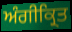
ਅੰਗੀਕ੍ਰਿਤ